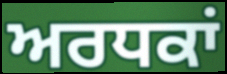
ਅਰਧਕਾਂ